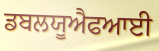
ਡਬਲਯੂਐਫਆਈ